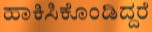
ಹಾಕಿಸಿಕೊಂಡಿದ್ದರೆ